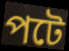
পটে